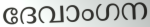
ദേവാംഗന